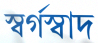
স্বর্গস্বাদ